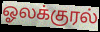
ஓலக்குரல்